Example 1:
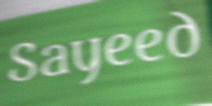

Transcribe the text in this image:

Sayeed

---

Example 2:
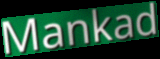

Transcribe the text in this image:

Mankad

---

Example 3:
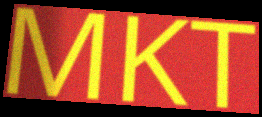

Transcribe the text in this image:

MKT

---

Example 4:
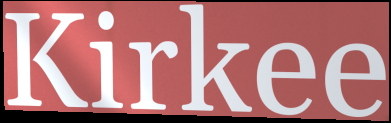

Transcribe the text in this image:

Kirkee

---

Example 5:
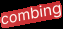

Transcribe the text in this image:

combing